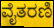
ವೈತರಣಿ